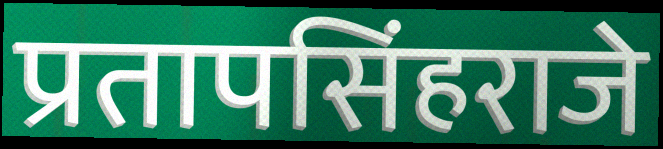
प्रतापसिंहराजे